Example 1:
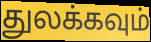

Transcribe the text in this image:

துலக்கவும்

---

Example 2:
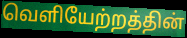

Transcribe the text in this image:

வெளியேற்றத்தின்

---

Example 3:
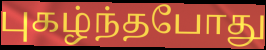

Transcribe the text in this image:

புகழ்ந்தபோது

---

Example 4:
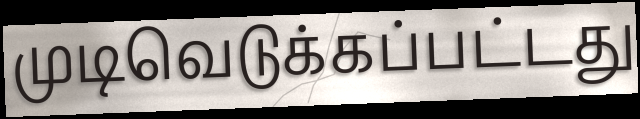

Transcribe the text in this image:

முடிவெடுக்கப்பட்டது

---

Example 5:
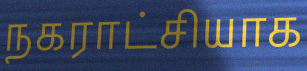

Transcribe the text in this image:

நகராட்சியாக